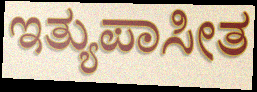
ಇತ್ಯುಪಾಸೀತ